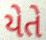
યેતે